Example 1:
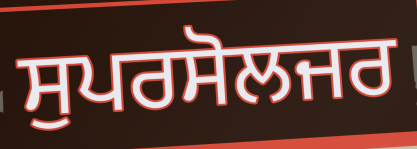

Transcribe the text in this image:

ਸੁਪਰਸੋਲਜਰ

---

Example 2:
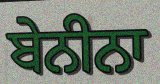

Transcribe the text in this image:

ਬੇਨੀਨਾ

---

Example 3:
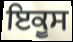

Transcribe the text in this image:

ਇਕੂਸ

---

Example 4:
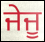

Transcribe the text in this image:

ਜੇਜੂ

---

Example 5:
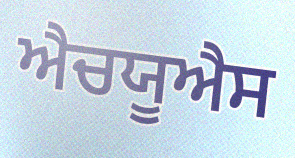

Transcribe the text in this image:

ਐਚਯੂਐਸ